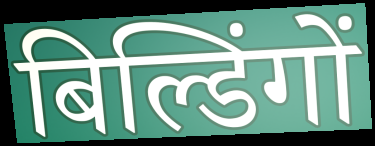
बिल्डिंगों